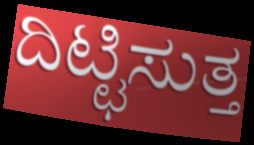
ದಿಟ್ಟಿಸುತ್ತ